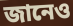
জানেও